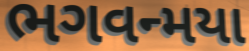
ભગવન્મયા